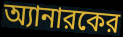
অ্যানারকের